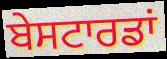
ਬੇਸਟਾਰਡਾਂ